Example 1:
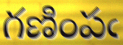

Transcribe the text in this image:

గణింపఁ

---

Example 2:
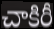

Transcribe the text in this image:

చాకిరీ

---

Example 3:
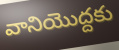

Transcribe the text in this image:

వానియొద్దకు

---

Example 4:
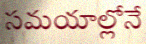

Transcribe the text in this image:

సమయాల్లోనే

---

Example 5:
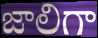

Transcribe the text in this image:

జాలిగా